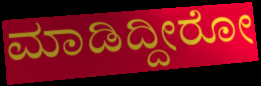
ಮಾಡಿದ್ದೀರೋ